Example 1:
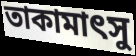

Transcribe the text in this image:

তাকামাৎসু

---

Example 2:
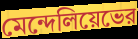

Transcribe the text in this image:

মেন্দেলিয়েভের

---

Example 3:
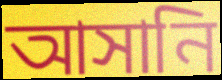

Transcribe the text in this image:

আসানি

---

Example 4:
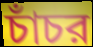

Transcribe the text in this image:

চাঁচর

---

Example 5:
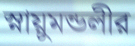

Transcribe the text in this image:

স্নায়ুমন্ডলীর